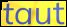
taut